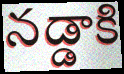
నడ్డాకి